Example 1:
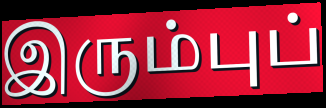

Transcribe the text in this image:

இரும்புப்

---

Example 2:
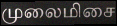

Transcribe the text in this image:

முலைமிசை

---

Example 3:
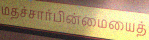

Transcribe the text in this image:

மதச்சார்பின்மையைத்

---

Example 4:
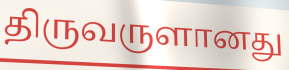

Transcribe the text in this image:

திருவருளானது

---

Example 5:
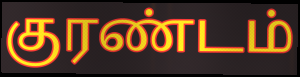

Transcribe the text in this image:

குரண்டம்